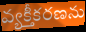
వ్యక్తీకరణను